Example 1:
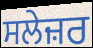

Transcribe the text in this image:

ਸਲੇਜ਼ਰ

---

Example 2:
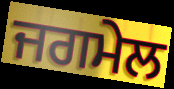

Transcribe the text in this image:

ਜਗਮੇਲ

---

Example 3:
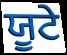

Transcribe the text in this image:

ਯੂਟੇ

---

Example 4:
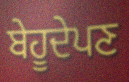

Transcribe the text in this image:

ਬੇਹੂਦੇਪਣ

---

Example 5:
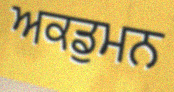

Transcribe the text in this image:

ਅਕਡੁਮਨ